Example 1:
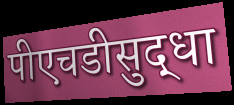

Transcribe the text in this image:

पीएचडीसुद्धा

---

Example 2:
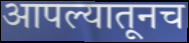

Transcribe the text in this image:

आपल्यातूनच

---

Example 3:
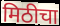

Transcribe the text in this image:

मिठीचा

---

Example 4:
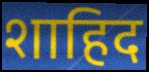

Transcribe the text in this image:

शाहिद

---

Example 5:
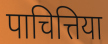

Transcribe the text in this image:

पाचित्तिया